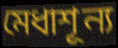
মেধাশূন্য